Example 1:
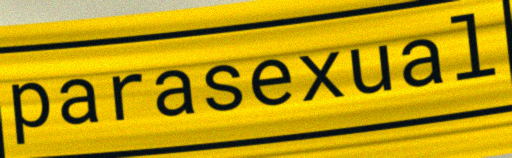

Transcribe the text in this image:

parasexual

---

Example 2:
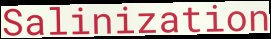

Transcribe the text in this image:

Salinization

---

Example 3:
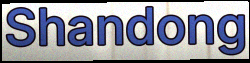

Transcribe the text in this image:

Shandong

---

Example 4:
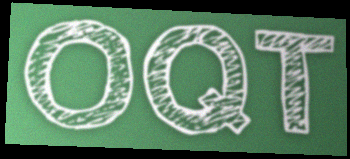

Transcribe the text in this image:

OQT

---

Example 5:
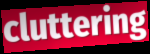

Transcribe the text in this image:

cluttering